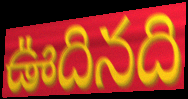
ఊదినది